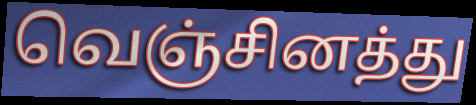
வெஞ்சினத்து